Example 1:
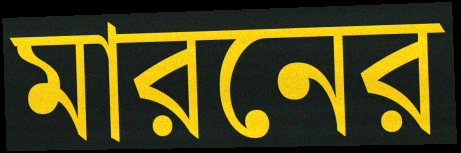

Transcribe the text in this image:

মারনের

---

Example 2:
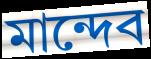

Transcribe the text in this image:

মান্দেব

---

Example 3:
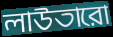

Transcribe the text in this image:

লাউতারো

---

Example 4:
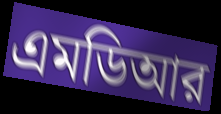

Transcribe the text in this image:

এমডিআর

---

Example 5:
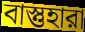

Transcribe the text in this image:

বাস্তুহারা